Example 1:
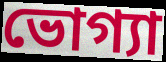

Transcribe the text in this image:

ভোগ্যা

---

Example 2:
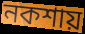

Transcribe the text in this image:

নকশায়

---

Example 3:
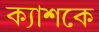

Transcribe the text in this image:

ক্যাশকে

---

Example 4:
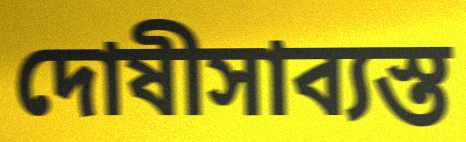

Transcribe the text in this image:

দোষীসাব্যস্ত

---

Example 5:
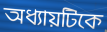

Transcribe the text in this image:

অধ্যায়টিকে